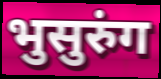
भुसुरुंग